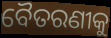
ବୈତରଣୀକୁ